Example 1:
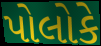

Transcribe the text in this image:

પોલોકે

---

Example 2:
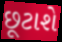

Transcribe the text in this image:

છૂટાશે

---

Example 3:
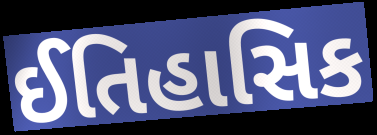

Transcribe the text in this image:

ઈતિહાસિક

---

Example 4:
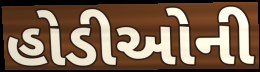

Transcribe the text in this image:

હોડીઓની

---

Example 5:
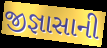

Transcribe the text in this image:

જીજ્ઞાસાની